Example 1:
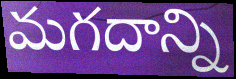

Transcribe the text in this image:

మగదాన్ని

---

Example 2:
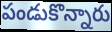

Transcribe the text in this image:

పండుకొన్నారు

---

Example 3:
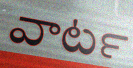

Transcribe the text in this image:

వాటర్‍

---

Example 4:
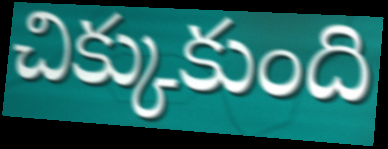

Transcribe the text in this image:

చిక్కుకుంది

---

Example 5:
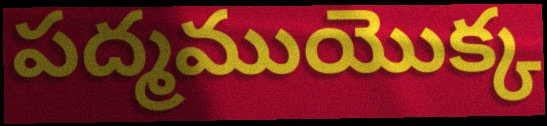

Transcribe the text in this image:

పద్మముయొక్క